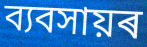
ব্যবসায়ৰ